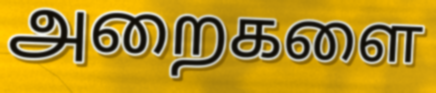
அறைகளை